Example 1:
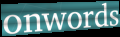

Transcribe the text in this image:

onwords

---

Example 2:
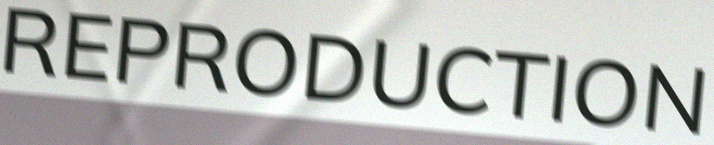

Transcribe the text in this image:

REPRODUCTION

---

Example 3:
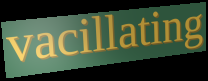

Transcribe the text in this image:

vacillating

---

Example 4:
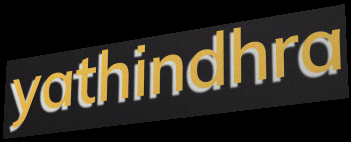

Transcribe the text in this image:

yathindhra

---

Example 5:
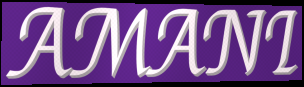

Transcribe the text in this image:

AMANI